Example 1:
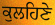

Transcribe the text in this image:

ਕੁਲਹਿਣੇ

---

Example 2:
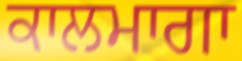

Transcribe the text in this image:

ਕਾਲਮਾਗਾ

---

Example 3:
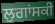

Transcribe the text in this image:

ਲੁਗਾਂਸਕੀ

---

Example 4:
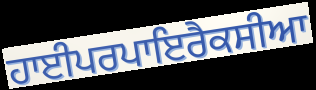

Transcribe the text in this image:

ਹਾਈਪਰਪਾਇਰੈਕਸੀਆ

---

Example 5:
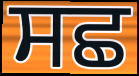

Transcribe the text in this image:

ਸਛ